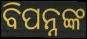
ବିପନ୍ନଙ୍କ